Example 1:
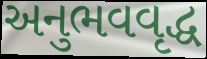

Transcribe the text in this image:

અનુભવવૃદ્ધ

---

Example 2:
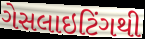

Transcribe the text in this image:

ગેસલાઇટિંગથી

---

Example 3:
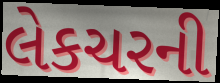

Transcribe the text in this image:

લેકચરની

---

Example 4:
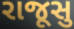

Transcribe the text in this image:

રાજૂસુ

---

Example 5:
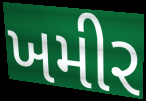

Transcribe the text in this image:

ખમીર